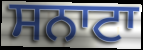
ਸਨਾਟਾ